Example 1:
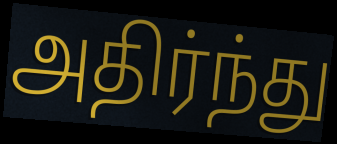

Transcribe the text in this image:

அதிர்ந்து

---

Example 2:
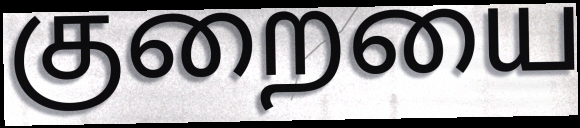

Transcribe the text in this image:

குறையை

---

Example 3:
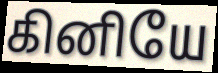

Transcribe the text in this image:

கினியே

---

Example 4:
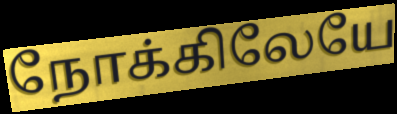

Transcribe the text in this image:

நோக்கிலேயே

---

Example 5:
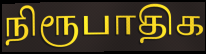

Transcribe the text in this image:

நிரூபாதிக